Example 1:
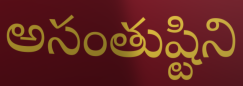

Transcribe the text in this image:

అసంతుష్టిని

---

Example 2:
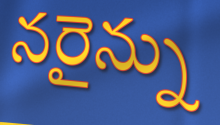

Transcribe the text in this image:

నరైన్ను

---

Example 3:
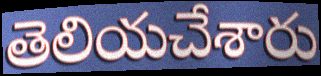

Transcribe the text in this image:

తెలియచేశారు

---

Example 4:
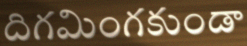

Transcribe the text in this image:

దిగమింగకుండా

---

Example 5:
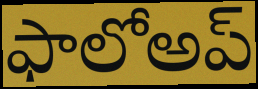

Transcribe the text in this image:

ఫాలోఅప్